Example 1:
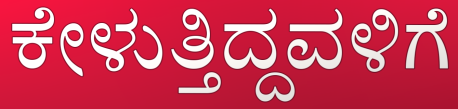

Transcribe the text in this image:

ಕೇಳುತ್ತಿದ್ದವಳಿಗೆ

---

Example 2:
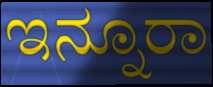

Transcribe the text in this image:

ಇನ್ನೂರಾ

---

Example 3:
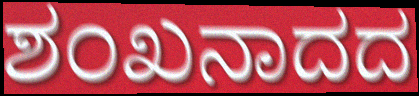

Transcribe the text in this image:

ಶಂಖನಾದದ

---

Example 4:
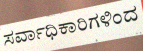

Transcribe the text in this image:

ಸರ್ವಾಧಿಕಾರಿಗಳಿಂದ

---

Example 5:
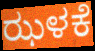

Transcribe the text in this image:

ಝಳಕೆ